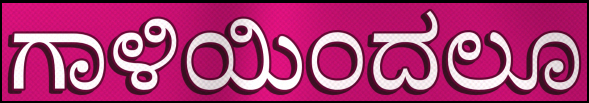
ಗಾಳಿಯಿಂದಲೂ